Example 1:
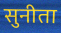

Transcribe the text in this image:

सुनीता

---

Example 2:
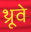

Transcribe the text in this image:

थ्रूवे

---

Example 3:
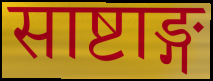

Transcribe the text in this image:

साष्टाङ्ग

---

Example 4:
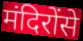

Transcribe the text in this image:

मंदिरोंसे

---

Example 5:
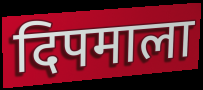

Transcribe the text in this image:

दिपमाला